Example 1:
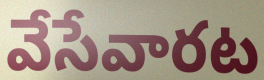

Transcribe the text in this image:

వేసేవారట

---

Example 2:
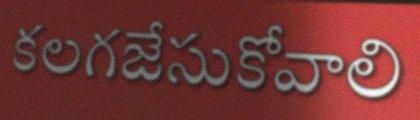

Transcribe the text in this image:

కలగజేసుకోవాలి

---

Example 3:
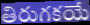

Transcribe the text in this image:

తిరుగకయే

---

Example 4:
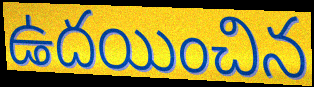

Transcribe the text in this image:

ఉదయించిన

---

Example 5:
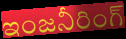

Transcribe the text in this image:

ఇంజనీరింగ్